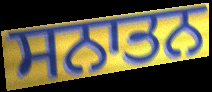
ਸਨਾਤਨ